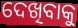
ଦେଖିବାକୁ